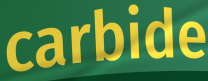
carbide